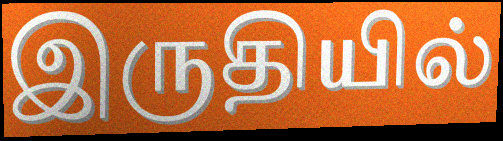
இருதியில்